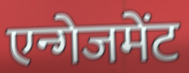
एन्गेजमेंट